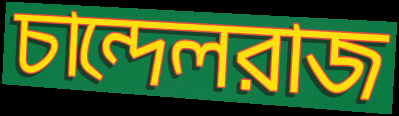
চান্দেলরাজ